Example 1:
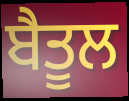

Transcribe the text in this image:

ਬੈਤੂਲ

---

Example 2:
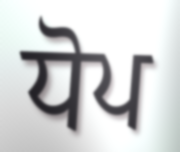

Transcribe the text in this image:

ਧੋਪ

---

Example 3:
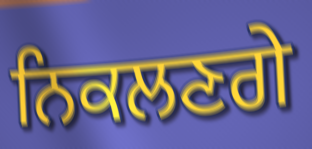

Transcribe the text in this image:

ਨਿਕਲਣਗੇ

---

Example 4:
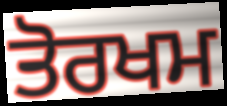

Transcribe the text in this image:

ਤੋਰਖਮ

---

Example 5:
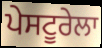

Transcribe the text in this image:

ਪੇਸਟੂਰੇਲਾ